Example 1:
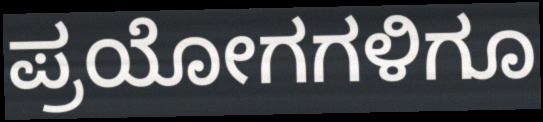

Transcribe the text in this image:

ಪ್ರಯೋಗಗಳಿಗೂ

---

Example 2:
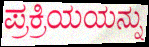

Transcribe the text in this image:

ಪ್ರಕ್ರಿಯಯನ್ನು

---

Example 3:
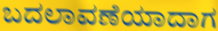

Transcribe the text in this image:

ಬದಲಾವಣೆಯಾದಾಗ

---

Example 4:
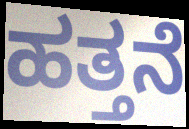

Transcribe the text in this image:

ಹತ್ತನೆ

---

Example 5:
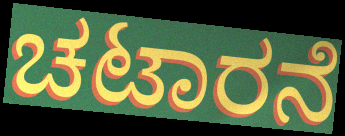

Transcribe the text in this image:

ಚಟಾರನೆ